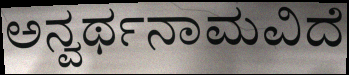
ಅನ್ವರ್ಥನಾಮವಿದೆ